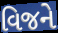
વિજને